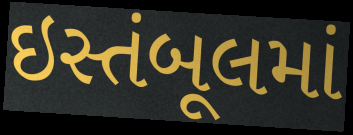
ઇસ્તંબૂલમાં